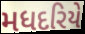
મધદરિયે